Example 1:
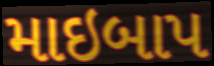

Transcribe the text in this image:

માઇબાપ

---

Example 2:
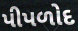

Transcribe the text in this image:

પીપળોદ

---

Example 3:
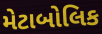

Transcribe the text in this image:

મેટાબોલિક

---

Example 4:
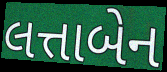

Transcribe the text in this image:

લત્તાબેન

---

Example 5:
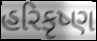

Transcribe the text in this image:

હરિકૃષ્ણ